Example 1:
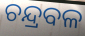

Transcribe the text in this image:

ଚନ୍ଦ୍ରବଳ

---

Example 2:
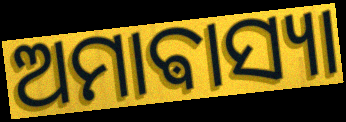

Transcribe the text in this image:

ଅମାଵାସ୍ୟା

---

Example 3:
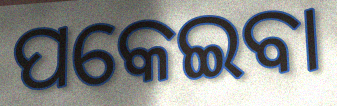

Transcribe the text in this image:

ପକେଇବା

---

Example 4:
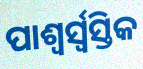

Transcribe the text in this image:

ପାଶ୍ୱର୍ସ୍ୱସ୍ତିକ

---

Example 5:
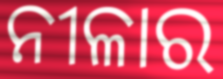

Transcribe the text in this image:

ନୀଳାର